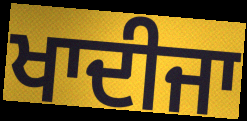
ਖਾਦੀਜਾ